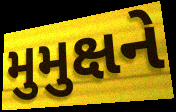
મુમુક્ષને